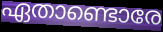
ഏതാണ്ടൊരേ